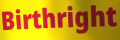
Birthright